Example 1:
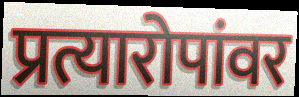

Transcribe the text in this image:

प्रत्यारोपांवर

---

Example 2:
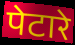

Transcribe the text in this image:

पेटारे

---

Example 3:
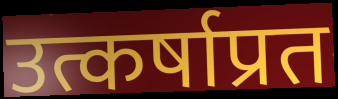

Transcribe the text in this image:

उत्कर्षाप्रत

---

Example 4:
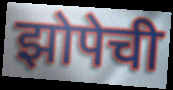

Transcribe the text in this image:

झोपेची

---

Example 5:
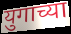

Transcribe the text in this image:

युगाच्या